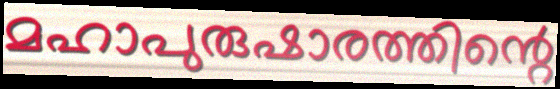
മഹാപുരുഷാരത്തിന്റെ